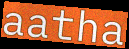
aatha